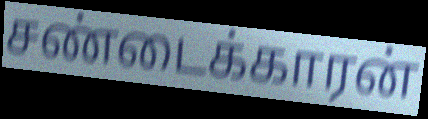
சண்டைக்காரன்